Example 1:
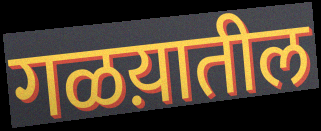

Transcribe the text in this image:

गळय़ातील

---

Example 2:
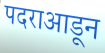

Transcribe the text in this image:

पदराआडून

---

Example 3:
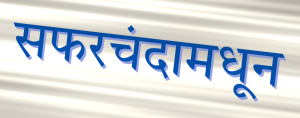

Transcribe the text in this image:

सफरचंदामधून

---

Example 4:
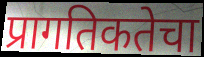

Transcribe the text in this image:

प्रागतिकतेचा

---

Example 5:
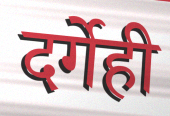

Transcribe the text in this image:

दर्गेही